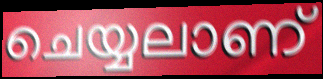
ചെയ്യലാണ്